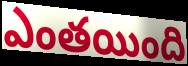
ఎంతయింది